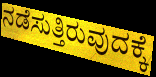
ನಡೆಸುತ್ತಿರುವುದಕ್ಕೆ